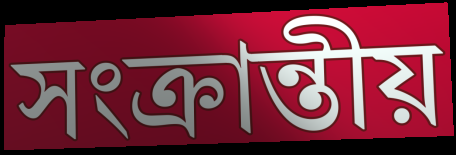
সংক্ৰান্তীয়